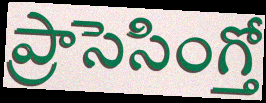
ప్రాసెసింగ్తో